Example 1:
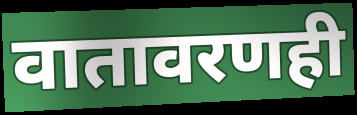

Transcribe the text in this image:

वातावरणही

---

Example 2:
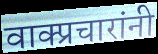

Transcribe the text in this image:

वाक्प्रचारांनी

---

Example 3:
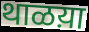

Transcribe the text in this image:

थाळय़ा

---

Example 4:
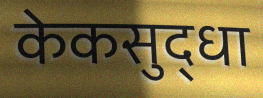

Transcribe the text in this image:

केकसुद्धा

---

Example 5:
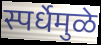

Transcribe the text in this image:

स्पर्धेमुळे